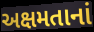
અક્ષમતાનાં